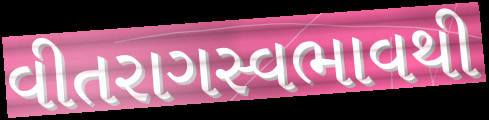
વીતરાગસ્વભાવથી